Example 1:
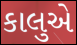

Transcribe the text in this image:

કાલુએ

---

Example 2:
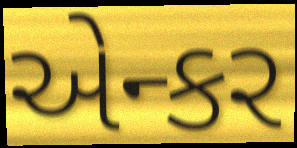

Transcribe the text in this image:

એન્કર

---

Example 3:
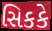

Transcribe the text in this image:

સિકકે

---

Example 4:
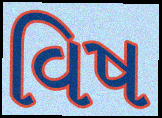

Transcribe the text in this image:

વિષ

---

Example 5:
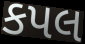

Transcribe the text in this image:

કપલ